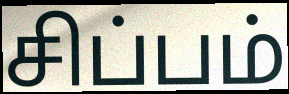
சிப்பம்